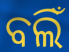
ବଲିଁ